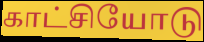
காட்சியோடு